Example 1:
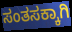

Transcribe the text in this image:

ಸಂತಸಕ್ಕಾಗಿ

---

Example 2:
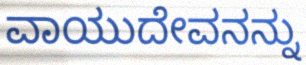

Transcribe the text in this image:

ವಾಯುದೇವನನ್ನು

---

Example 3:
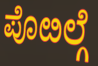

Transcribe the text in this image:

ಪೊೞಲ್ಗೆ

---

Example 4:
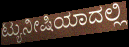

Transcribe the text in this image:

ಟ್ಯುನೀಷಿಯಾದಲ್ಲಿ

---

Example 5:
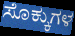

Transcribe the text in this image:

ಸೊಕ್ಕುಗಳ